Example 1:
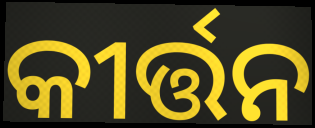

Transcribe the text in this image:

କୀର୍ତ୍ତନ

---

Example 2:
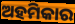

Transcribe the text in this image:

ଅହମିକାର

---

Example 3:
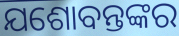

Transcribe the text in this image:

ଯଶୋବନ୍ତଙ୍କର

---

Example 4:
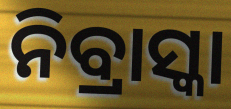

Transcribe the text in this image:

ନିବ୍ରାସ୍କା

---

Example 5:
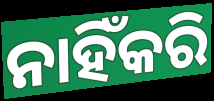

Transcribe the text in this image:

ନାହିଁକରି